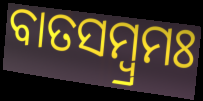
ବାତସମ୍ବ୍ରମଃ